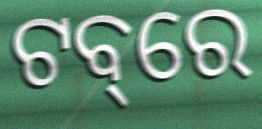
ଟବ୍‌ରେ